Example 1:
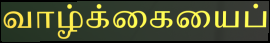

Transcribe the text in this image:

வாழ்க்கையைப்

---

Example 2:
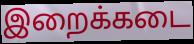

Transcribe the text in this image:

இறைக்கடை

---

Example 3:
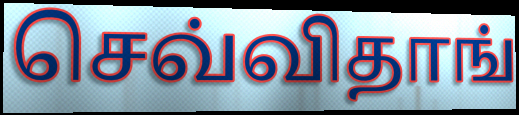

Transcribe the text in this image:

செவ்விதாங்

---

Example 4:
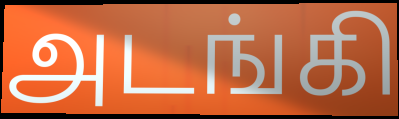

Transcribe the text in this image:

அடங்கி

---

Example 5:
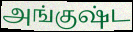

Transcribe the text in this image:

அங்குஷ்ட